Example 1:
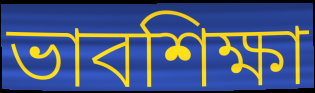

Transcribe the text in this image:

ভাবশিক্ষা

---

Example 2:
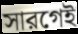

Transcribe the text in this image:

সারগেই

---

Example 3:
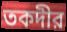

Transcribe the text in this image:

তকদীর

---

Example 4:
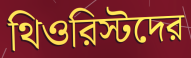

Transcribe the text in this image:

থিওরিস্টদের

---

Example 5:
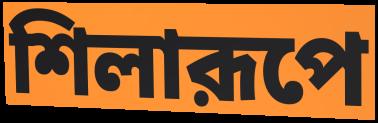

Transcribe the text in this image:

শিলারূপে